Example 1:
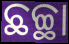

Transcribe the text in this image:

ଛଚ୍ଛା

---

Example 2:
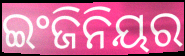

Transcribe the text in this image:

ଇଂଜିନିୟର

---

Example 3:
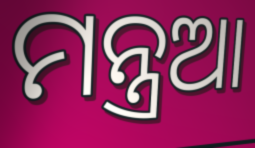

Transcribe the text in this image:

ମନ୍ତ୍ରଆ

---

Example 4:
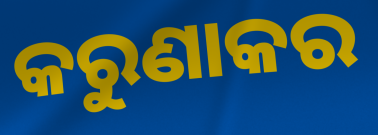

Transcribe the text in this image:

କରୁଣାକର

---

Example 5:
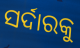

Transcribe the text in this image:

ସର୍ଦାରକୁ